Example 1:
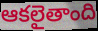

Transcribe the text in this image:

ఆకలైతాంది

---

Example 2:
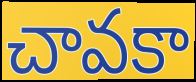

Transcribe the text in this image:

చావకా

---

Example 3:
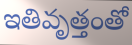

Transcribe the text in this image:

ఇతివృత్తంతో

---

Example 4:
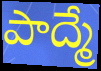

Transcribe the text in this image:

పాద్మే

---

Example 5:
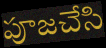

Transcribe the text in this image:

పూజచేసి